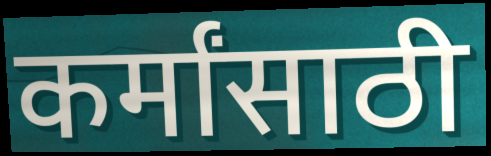
कर्मांसाठी